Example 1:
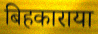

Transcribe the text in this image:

बिहकाराया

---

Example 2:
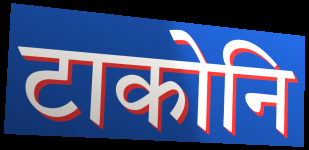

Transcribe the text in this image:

टाकोनि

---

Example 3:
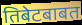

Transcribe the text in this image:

तिबेटबाबत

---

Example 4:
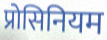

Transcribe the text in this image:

प्रोसिनियम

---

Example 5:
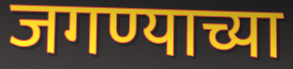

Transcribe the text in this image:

जगण्याच्या